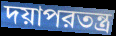
দয়াপরতন্ত্র